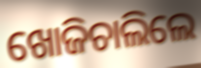
ଖୋଜିଚାଲିଲେ